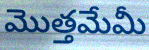
మొత్తమేమీ